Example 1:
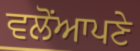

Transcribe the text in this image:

ਵਲੋਂਆਪਣੇ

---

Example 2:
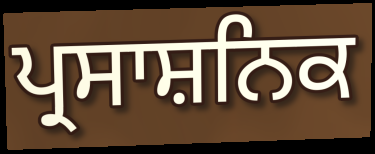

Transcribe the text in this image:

ਪ੍ਰਸਾਸ਼ਨਿਕ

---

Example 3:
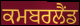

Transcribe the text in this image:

ਕਮਬਰਲੈਂਡ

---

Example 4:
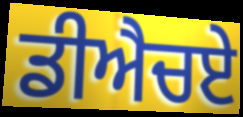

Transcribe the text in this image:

ਡੀਐਚਏ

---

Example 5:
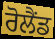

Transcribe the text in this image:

ਰੋਲੈਂਡ